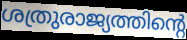
ശത്രുരാജ്യത്തിന്റെ